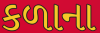
કળાના